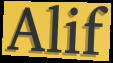
Alif